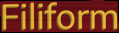
Filiform